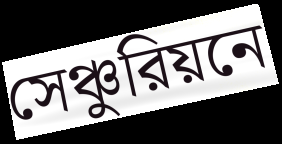
সেঞ্চুরিয়নে